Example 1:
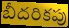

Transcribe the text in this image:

బీదరికపు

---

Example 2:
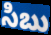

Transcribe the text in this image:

సిబు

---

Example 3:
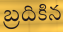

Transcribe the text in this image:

బ్రదికిన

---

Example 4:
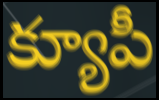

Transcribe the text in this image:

క్యూపీ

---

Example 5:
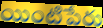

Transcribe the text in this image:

యింటిపేరు